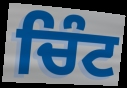
ਚਿੰਟ